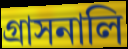
গ্রাসনালি